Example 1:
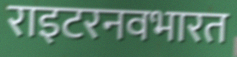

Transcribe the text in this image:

राइटरनवभारत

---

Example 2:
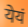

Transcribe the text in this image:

येयं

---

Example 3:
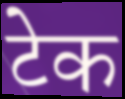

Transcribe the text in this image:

टेक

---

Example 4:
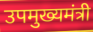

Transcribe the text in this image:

उपमुख्यमंत्री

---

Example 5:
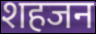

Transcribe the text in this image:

शहजन